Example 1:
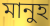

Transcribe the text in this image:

মানুহ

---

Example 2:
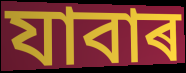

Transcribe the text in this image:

যাবাৰ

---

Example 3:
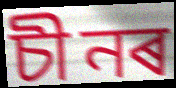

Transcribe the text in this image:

চীনৰ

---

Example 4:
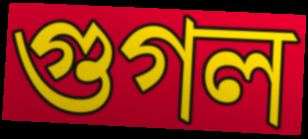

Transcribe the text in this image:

গুগল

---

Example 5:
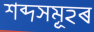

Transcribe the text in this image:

শব্দসমূহৰ